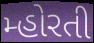
મ્હોરતી